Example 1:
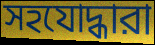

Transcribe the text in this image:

সহযোদ্ধারা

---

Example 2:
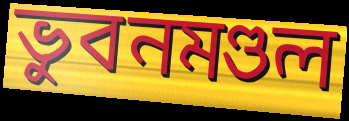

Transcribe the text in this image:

ভুবনমণ্ডল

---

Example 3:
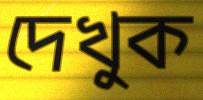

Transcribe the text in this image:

দেখুক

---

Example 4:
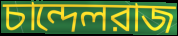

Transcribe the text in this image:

চান্দেলরাজ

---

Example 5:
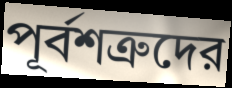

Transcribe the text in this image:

পূর্বশত্রুদের